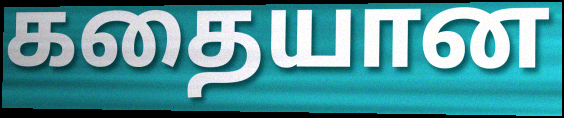
கதையான